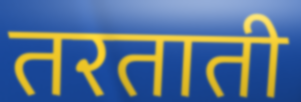
तरताती